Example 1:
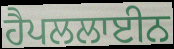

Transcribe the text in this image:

ਹੈਪਲਲਾਈਨ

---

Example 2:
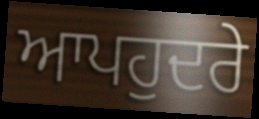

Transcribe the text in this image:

ਆਪਹੁਦਰੇ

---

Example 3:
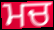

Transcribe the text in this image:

ਮਚ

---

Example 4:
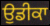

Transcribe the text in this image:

ਉਡੀਕਾ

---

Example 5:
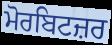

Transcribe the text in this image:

ਮੋਰਬਿਟਜ਼ਰ